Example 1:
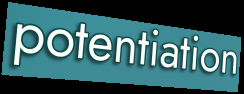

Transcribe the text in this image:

potentiation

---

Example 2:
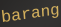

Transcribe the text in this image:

barang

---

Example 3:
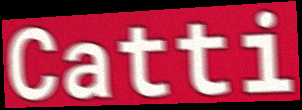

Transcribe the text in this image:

Catti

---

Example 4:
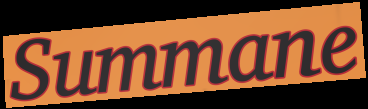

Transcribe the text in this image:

Summane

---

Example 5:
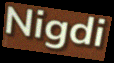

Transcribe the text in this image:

Nigdi